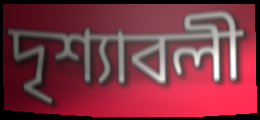
দৃশ্যাবলী